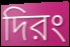
দিরং